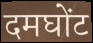
दमघोंट